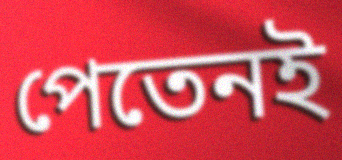
পেতেনই